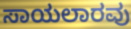
ಸಾಯಲಾರವು